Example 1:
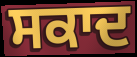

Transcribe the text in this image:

ਸਕਾਦ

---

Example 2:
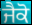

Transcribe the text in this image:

ਜੈਕੋ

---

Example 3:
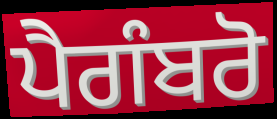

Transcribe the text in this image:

ਪੈਗੰਬਰੋ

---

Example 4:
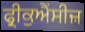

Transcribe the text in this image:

ਫ੍ਰੀਕੁਐਂਸੀਜ਼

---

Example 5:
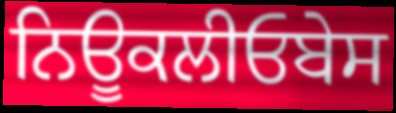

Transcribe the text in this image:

ਨਿਊਕਲੀਓਬੇਸ